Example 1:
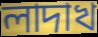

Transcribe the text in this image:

লাদাখ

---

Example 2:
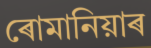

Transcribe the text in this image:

ৰোমানিয়াৰ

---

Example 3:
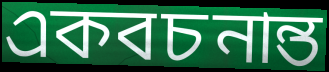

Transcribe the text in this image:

একবচনান্ত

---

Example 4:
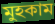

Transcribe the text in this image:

মুহকাম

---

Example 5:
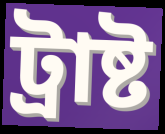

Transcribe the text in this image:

ট্ৰাষ্ট